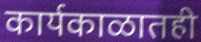
कार्यकाळातही